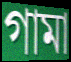
গামা